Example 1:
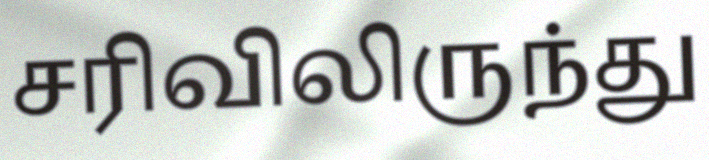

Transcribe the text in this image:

சரிவிலிருந்து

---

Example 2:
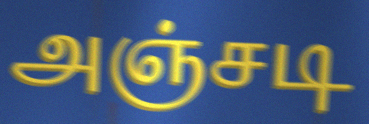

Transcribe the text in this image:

அஞ்சடி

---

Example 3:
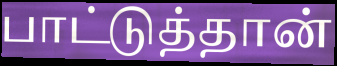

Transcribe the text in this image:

பாட்டுத்தான்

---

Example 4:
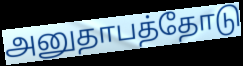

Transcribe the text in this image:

அனுதாபத்தோடு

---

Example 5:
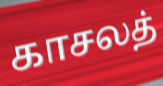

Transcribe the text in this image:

காசலத்